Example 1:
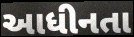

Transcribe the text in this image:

આધીનતા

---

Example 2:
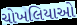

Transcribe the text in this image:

ચોખલિયાઓ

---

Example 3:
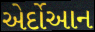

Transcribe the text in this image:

એર્દોઆન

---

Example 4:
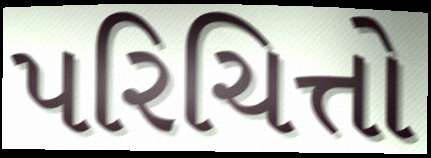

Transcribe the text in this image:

પરિચિત્તો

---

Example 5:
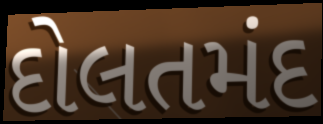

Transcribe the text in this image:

દોલતમંદ